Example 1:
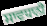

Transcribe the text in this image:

ਸਾਵਧਾਨੀ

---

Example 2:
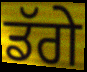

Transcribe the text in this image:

ਡੱਗੇ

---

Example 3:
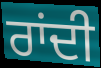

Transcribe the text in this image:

ਰਾਂਦੀ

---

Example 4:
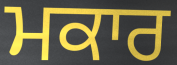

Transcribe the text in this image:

ਮਕਾਰ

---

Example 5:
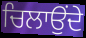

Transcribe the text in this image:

ਚਿਲਾਉਂਦੇ